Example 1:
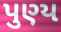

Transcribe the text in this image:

પુણ્ય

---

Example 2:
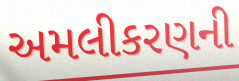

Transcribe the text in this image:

અમલીકરણની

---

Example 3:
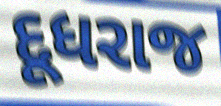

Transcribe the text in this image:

દૂધરાજ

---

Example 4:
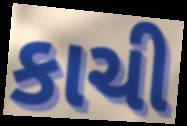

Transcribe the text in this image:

કાચી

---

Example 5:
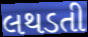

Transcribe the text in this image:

લથડતી